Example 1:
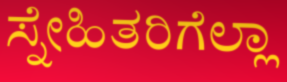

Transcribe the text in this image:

ಸ್ನೇಹಿತರಿಗೆಲ್ಲಾ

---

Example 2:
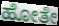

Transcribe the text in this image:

ಹೋತೇ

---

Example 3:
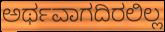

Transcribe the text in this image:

ಅರ್ಥವಾಗದಿರಲಿಲ್ಲ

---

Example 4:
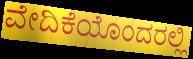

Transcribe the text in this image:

ವೇದಿಕೆಯೊಂದರಲ್ಲಿ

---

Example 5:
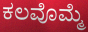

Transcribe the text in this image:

ಕಲವೊಮ್ಮೆ